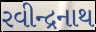
રવીન્દ્રનાથ